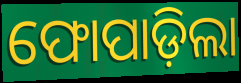
ଫୋପାଡ଼ିଲା